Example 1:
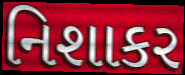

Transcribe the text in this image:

નિશાકર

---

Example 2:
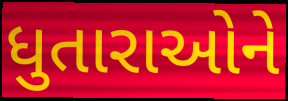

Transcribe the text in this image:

ધુતારાઓને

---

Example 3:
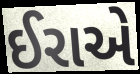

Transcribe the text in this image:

ઈરાએ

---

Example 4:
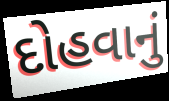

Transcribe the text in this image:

દોહવાનું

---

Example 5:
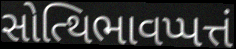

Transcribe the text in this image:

સોત્થિભાવપ્પત્તં